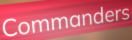
Commanders